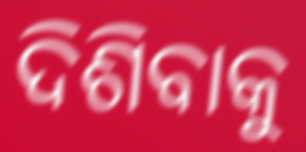
ଦିଶିବାକୁ